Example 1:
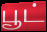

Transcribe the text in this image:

பூட்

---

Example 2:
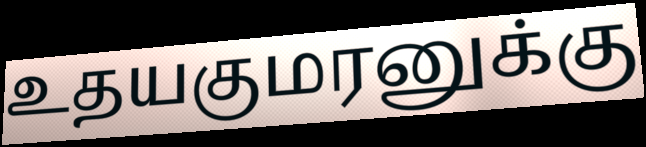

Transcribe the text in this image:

உதயகுமரனுக்கு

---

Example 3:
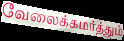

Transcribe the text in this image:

வேலைக்கமர்த்தும்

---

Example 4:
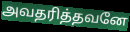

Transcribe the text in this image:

அவதரித்தவனே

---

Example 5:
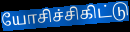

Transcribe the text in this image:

யோசிச்சிகிட்டு